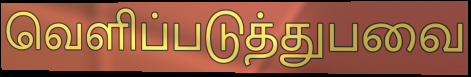
வெளிப்படுத்துபவை